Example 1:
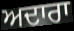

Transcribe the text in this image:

ਅਦਾਰਾ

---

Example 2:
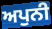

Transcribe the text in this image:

ਅਪੁਨੀ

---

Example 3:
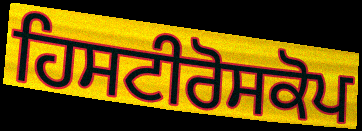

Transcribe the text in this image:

ਹਿਸਟੀਰੋਸਕੋਪ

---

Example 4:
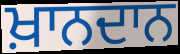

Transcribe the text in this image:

ਖ਼ਾਨਦਾਨ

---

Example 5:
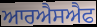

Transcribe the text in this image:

ਆਰਐਸਐਫ